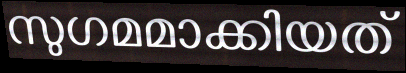
സുഗമമാക്കിയത്